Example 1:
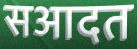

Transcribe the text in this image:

सआदत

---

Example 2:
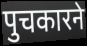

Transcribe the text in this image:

पुचकारने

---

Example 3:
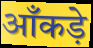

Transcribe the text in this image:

आँकड़े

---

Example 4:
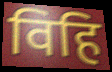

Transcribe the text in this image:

विहि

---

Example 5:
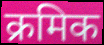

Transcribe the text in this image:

क्रमिक